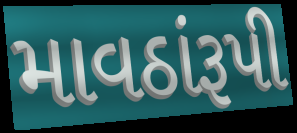
માવઠાંરૂપી